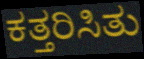
ಕತ್ತರಿಸಿತು